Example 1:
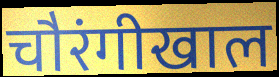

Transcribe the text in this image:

चौरंगीखाल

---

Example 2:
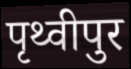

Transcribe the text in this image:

पृथ्वीपुर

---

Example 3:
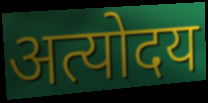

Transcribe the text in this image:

अत्योदय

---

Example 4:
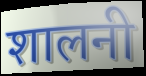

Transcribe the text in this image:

शालनी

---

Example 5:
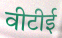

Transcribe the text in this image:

वीटीई